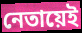
নেতায়েই